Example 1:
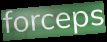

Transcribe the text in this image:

forceps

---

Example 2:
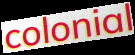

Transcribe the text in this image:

colonial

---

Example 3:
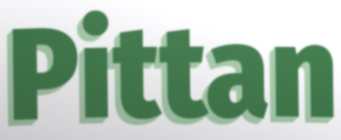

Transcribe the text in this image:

Pittan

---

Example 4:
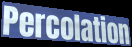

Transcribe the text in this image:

Percolation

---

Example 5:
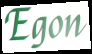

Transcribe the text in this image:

Egon